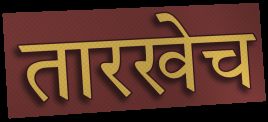
तारखेच